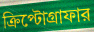
ক্রিপ্টোগ্রাফার